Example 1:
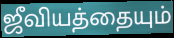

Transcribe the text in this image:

ஜீவியத்தையும்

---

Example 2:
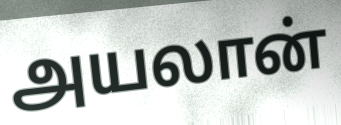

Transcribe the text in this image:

அயலான்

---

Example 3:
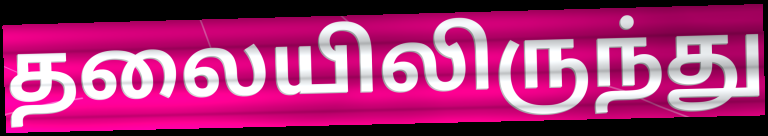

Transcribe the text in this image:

தலையிலிருந்து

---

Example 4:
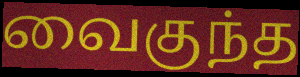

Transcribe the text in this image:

வைகுந்த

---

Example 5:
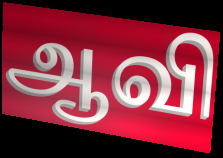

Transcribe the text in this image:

ஆவி